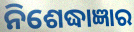
ନିଶେଦ୍ଧାଜ୍ଞାର